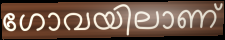
ഗോവയിലാണ്